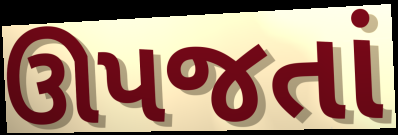
ઊપજતાં